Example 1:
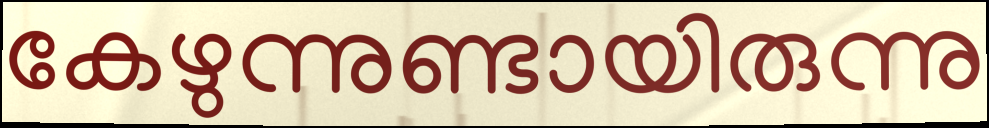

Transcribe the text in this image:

കേഴുന്നുണ്ടായിരുന്നു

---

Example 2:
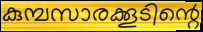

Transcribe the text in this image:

കുമ്പസാരക്കൂടിന്റെ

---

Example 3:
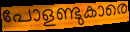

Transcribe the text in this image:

പോളണ്ടുകാരെ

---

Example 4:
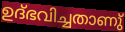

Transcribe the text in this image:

ഉദ്ഭവിച്ചതാണു്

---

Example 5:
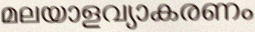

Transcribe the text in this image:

മലയാളവ്യാകരണം